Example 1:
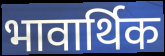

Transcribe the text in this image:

भावार्थिक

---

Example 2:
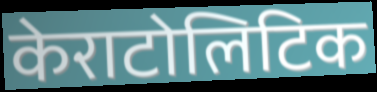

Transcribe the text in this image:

केराटोलिटिक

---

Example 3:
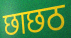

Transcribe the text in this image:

छाछठ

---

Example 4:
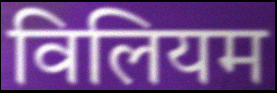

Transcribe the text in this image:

विलियम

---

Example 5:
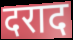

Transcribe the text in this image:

दराद